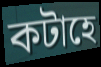
কটাহে